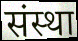
संस्था